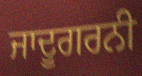
ਜਾਦੂਗਰਨੀ